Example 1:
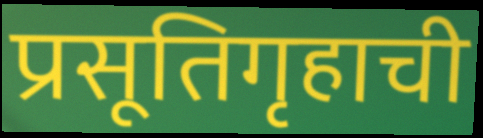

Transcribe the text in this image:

प्रसूतिगृहाची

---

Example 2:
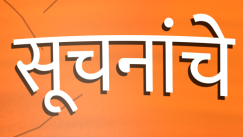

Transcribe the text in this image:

सूचनांचे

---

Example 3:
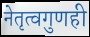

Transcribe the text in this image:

नेतृत्वगुणही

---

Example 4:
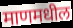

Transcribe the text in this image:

माणमधील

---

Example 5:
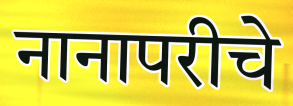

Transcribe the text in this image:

नानापरीचे